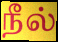
நீல்